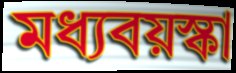
মধ্যবয়স্কা